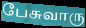
பேசுவாரு